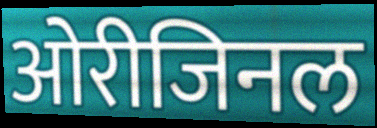
ओरीजिनल